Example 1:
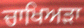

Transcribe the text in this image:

ਚਾਖਿਅੜਾ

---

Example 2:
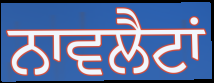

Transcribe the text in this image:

ਨਾਵਲੈਟਾਂ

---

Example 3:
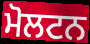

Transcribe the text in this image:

ਮੋਲਟਨ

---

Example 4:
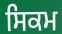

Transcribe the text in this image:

ਸਿਕਮ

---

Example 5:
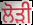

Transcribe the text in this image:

ਲੋੜੀ